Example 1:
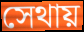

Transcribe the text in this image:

সেথায়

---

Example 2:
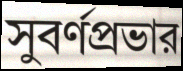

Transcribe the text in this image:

সুবর্ণপ্রভার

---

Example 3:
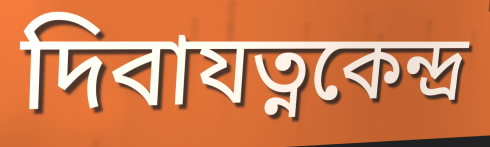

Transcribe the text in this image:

দিবাযত্নকেন্দ্র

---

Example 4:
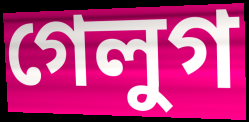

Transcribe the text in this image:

গেলুগ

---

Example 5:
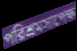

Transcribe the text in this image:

পরিশ্রমসাপেক্ষ